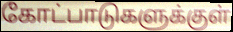
கோட்பாடுகளுக்குள்